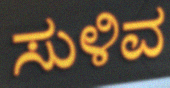
ಸುಳಿವ